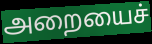
அறையைச்